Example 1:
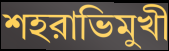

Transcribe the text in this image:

শহরাভিমুখী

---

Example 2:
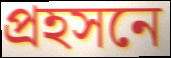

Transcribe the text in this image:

প্রহসনে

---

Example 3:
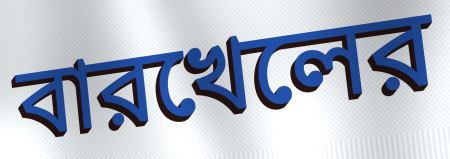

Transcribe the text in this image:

বারখেলের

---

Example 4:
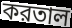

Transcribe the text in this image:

করতাল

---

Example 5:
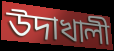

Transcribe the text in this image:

উদাখালী